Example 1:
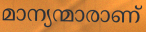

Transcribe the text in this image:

മാന്യന്മാരാണ്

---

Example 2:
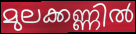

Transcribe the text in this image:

മുലക്കണ്ണിൽ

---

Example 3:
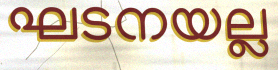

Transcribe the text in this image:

ഘടനയല്ല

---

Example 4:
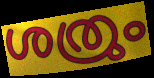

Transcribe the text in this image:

ശത്രും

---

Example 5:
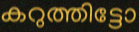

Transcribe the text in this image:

കറുത്തിട്ടോ